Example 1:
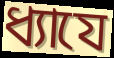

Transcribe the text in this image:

ধ্যাযে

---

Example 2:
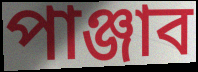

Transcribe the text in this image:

পাঞ্জাব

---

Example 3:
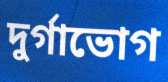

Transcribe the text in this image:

দুর্গাভোগ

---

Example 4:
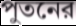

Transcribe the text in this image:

পুতনের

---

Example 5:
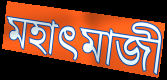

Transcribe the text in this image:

মহাৎমাজী